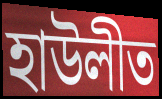
হাউলীত